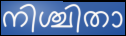
നിശ്ചിതാ